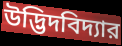
উদ্ভিদবিদ্যার